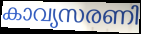
കാവ്യസരണി